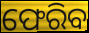
ଫେରିବ